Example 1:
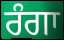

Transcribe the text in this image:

ਰੰਗਾ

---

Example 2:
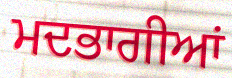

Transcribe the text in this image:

ਮਦਭਾਗੀਆਂ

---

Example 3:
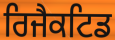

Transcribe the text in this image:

ਰਿਜੈਕਟਿਡ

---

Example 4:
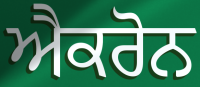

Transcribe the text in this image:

ਐਕਰੋਨ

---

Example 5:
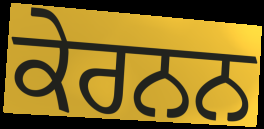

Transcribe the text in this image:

ਕੇਰਨਨ